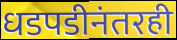
धडपडीनंतरही